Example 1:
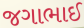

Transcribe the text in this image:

જગાભાઈ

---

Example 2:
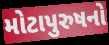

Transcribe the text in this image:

મોટાપુરુષનો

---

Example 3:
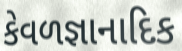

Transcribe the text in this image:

કેવળજ્ઞાનાદિક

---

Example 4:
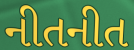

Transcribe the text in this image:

નીતનીત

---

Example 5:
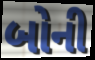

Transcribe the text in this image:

બોની